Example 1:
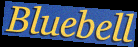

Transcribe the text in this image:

Bluebell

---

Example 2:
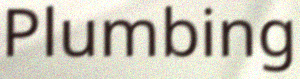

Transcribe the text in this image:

Plumbing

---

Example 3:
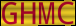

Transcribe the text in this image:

GHMC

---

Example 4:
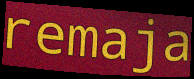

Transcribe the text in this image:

remaja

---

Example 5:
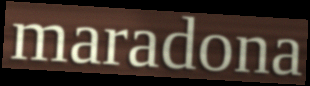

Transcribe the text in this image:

maradona